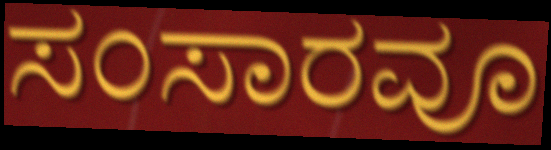
ಸಂಸಾರವೂ